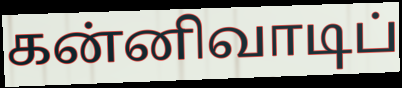
கன்னிவாடிப்